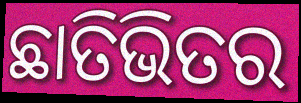
ଛାତିଭିତର